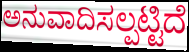
ಅನುವಾದಿಸಲ್ಪಟ್ಟಿದೆ